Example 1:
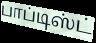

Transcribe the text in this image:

பாப்டிஸ்ட்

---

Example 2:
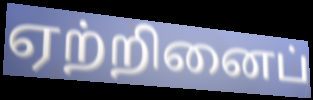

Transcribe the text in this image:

ஏற்றினைப்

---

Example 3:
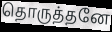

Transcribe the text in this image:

தொருத்தனே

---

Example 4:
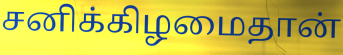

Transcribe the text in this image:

சனிக்கிழமைதான்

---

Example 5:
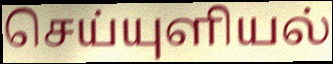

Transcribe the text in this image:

செய்யுளியல்